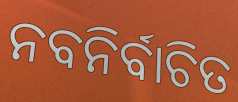
ନବନିର୍ବାଚିତ